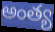
అంత్య